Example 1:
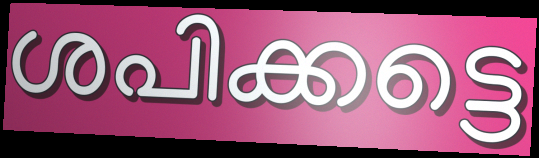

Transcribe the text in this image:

ശപിക്കട്ടെ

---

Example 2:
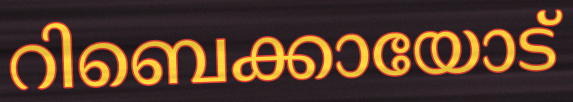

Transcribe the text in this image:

റിബെക്കായോട്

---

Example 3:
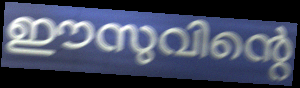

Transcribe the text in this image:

ഈസുവിന്റെ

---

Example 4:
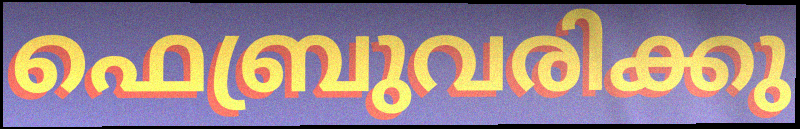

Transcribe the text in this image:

ഫെബ്രുവരിക്കു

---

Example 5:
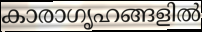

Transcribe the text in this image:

കാരാഗൃഹങ്ങളിൽ